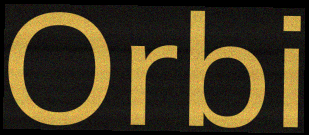
Orbi